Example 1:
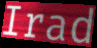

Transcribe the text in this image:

Irad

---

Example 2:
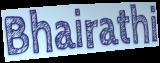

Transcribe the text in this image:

Bhairathi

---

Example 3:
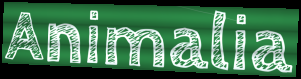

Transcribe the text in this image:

Animalia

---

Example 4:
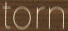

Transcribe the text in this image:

torn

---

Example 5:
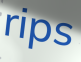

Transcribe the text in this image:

rips